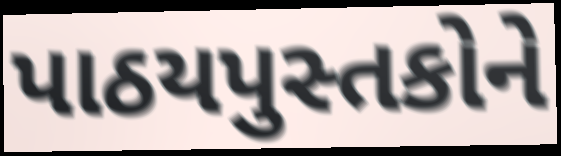
પાઠયપુસ્તકોને